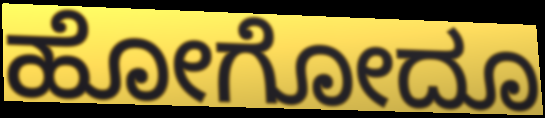
ಹೋಗೋದೂ